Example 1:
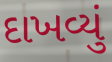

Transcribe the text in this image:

દાખવ્યું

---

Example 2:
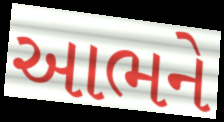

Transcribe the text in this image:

આભને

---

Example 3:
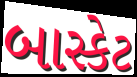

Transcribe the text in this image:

બાસ્કેટ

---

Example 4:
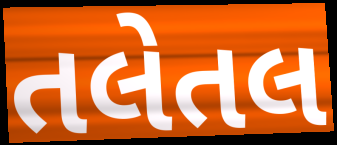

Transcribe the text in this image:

તલેતલ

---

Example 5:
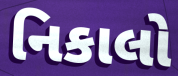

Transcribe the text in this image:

નિકાલો